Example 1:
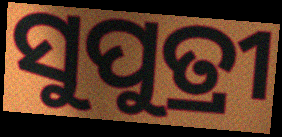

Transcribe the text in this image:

ସୁପୁତ୍ରୀ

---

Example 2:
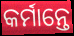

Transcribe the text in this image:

କର୍ମାନ୍ତେ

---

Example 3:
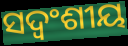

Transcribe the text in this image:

ସଦ୍ବଂଶୀୟ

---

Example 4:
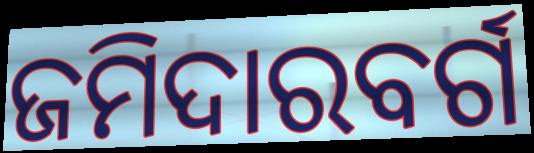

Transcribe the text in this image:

ଜମିଦାରବର୍ଗ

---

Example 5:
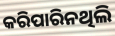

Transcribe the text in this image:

କରିପାରିନଥିଲି